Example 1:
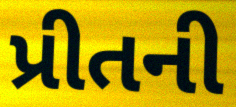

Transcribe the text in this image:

પ્રીતની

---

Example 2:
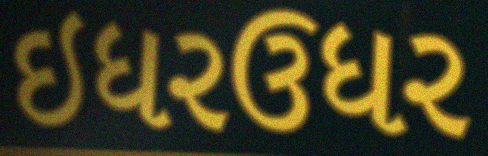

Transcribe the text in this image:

ઇધરઉધર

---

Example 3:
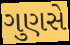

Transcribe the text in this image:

ગુણસે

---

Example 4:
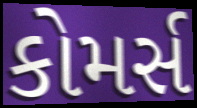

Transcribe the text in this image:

કોમર્સ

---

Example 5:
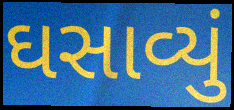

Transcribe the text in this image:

ઘસાવ્યું